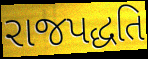
રાજપદ્ધતિ